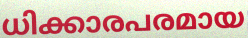
ധിക്കാരപരമായ